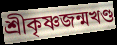
শ্রীকৃষ্ণজন্মখণ্ড